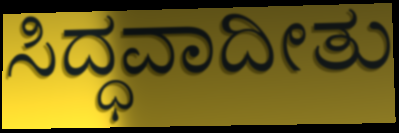
ಸಿದ್ಧವಾದೀತು